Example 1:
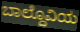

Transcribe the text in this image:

ಬಾಲ್ದೊವಿಯ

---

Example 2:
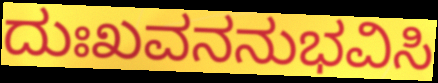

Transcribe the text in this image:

ದುಃಖವನನುಭವಿಸಿ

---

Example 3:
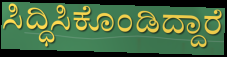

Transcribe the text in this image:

ಸಿದ್ಧಿಸಿಕೊಂಡಿದ್ದಾರೆ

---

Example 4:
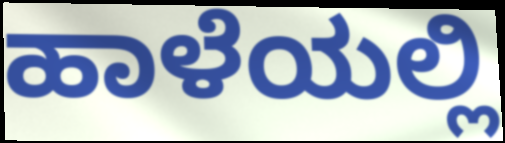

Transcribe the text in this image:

ಹಾಳೆಯಲ್ಲಿ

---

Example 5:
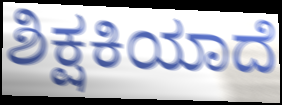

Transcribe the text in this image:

ಶಿಕ್ಷಕಿಯಾದೆ